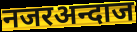
नजरअन्दाज